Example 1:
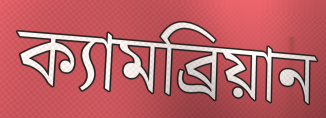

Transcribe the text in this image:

ক্যামব্রিয়ান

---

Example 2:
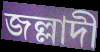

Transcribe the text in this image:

জল্লাদী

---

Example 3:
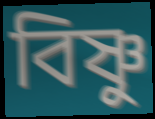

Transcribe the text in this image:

বিষ্ণু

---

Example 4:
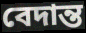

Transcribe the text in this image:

বেদান্ত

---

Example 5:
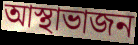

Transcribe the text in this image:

আস্থাভাজন